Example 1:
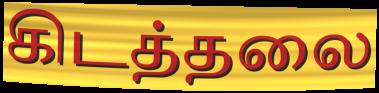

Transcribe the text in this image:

கிடத்தலை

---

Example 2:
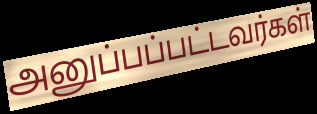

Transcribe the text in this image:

அனுப்பப்பட்டவர்கள்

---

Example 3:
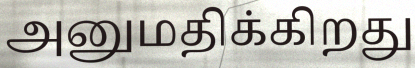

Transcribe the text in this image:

அனுமதிக்கிறது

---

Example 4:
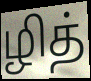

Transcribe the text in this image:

ழித்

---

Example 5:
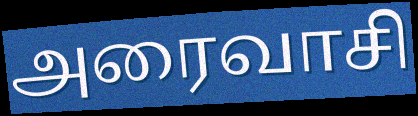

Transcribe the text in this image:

அரைவாசி